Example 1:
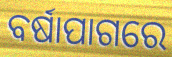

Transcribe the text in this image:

ବର୍ଷାପାଗରେ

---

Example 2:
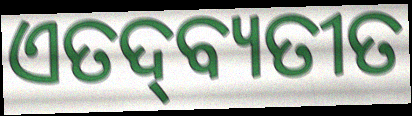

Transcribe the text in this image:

ଏତଦ୍‌ବ୍ୟତୀତ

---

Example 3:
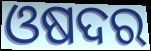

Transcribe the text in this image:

ଓଷଦର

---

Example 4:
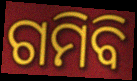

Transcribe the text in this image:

ଗମିବି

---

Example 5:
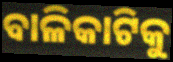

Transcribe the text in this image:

ବାଳିକାଟିକୁ